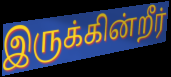
இருக்கின்றீர்